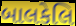
બાલકેલિ